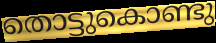
തൊട്ടുകൊണ്ടു